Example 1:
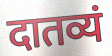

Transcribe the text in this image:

दातव्यं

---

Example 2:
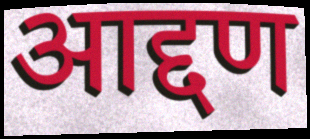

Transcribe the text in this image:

आद्दण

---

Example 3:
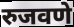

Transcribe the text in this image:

रुजवणे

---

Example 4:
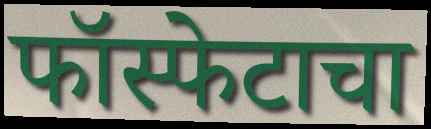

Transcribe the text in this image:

फॉस्फेटाचा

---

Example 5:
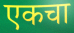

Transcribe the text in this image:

एकचा